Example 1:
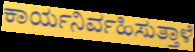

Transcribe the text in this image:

ಕಾರ್ಯನಿರ್ವಹಿಸುತ್ತಾಳೆ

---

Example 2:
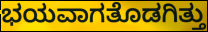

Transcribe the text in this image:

ಭಯವಾಗತೊಡಗಿತ್ತು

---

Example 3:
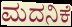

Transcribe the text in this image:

ಮದನಿಕೆ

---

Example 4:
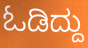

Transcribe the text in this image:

ಓಡಿದ್ದು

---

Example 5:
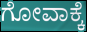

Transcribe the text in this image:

ಗೋವಾಕ್ಕೆ